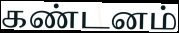
கண்டனம்